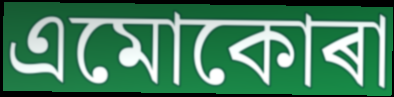
এমোকোৰা